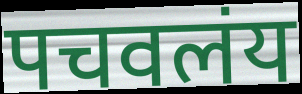
पचवलंय